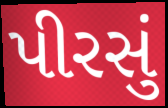
પીરસું